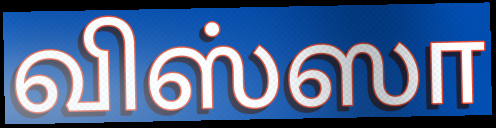
விஸ்ஸா